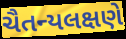
ચૈતન્યલક્ષણે